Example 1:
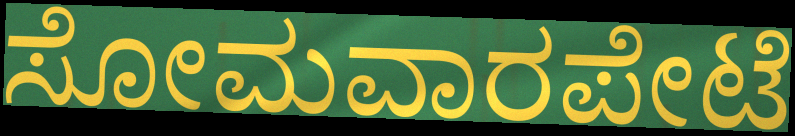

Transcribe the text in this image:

ಸೋಮವಾರಪೇಟೆ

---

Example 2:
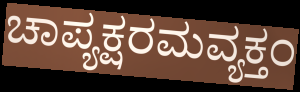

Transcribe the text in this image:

ಚಾಪ್ಯಕ್ಷರಮವ್ಯಕ್ತಂ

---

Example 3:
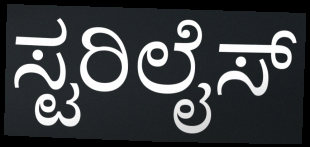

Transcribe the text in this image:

ಸ್ಟರಿಲೈಸ್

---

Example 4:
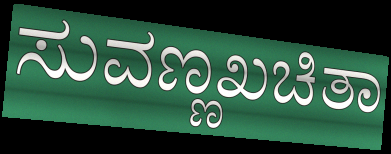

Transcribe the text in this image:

ಸುವಣ್ಣಖಚಿತಾ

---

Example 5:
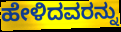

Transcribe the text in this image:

ಹೇಳಿದವರನ್ನು